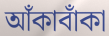
আঁকাবাঁকা